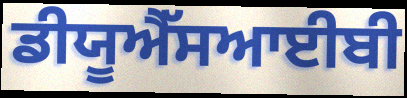
ਡੀਯੂਐੱਸਆਈਬੀ